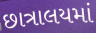
છાત્રાલયમાં